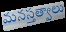
మనస్తత్వాలు